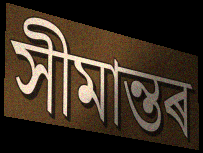
সীমান্তৰ